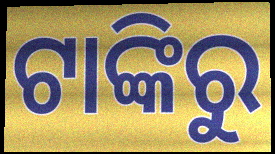
ଟାଙ୍କିରୁ